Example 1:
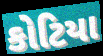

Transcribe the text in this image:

કોટિયા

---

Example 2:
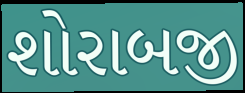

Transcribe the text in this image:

શોરાબજી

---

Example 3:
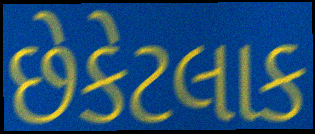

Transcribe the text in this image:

છેકેટલાક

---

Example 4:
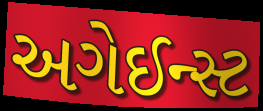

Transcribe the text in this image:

અગેઈન્સ્ટ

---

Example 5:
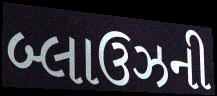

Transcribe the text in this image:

બ્લાઉઝની